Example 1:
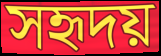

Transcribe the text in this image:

সহৃদয়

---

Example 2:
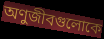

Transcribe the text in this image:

অণুজীবগুলোকে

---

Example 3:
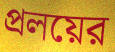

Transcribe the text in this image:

প্রলয়ের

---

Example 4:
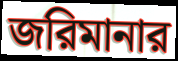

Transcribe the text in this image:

জরিমানার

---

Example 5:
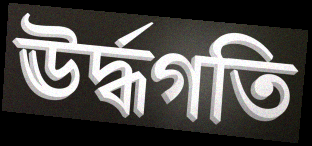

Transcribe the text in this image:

ঊর্দ্ধগতি